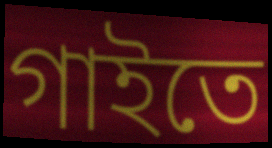
গাইতে